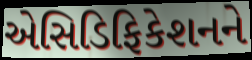
એસિડિફિકેશનને